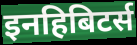
इनहिबिटर्स